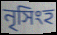
নৃসিংহ